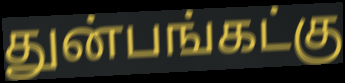
துன்பங்கட்கு